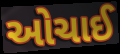
ઓચાઈ